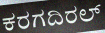
ಕರಗದಿರಲ್